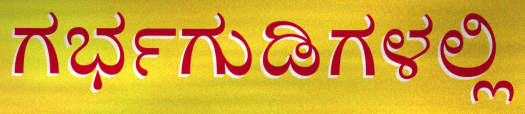
ಗರ್ಭಗುಡಿಗಳಲ್ಲಿ